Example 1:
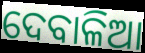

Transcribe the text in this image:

ଦେବାଳିଆ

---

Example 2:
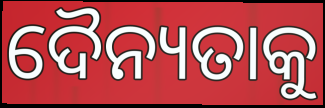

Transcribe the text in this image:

ଦୈନ୍ୟତାକୁ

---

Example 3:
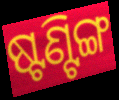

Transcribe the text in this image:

ଷ୍ଟଣ୍ଟିଙ୍ଗ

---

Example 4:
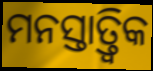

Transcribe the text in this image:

ମନସ୍ତାତ୍ତ୍ୱିକ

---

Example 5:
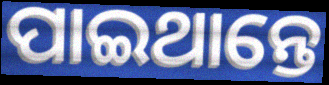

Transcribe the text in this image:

ପାଇଥାନ୍ତେ